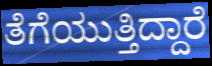
ತೆಗೆಯುತ್ತಿದ್ದಾರೆ